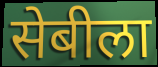
सेबीला